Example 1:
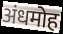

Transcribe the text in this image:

अंधमोह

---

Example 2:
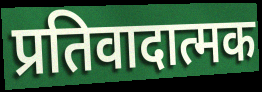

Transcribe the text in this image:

प्रतिवादात्मक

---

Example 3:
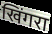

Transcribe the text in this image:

खिंगरा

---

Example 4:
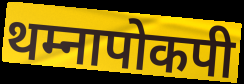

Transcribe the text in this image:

थम्नापोकपी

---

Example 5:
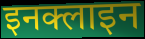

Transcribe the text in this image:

इनक्लाइन